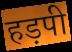
हड़पी